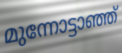
മുന്നോട്ടാഞ്ഞ്